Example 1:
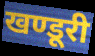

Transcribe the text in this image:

खण्डूरी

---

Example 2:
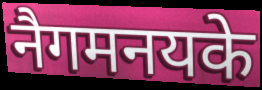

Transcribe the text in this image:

नैगमनयके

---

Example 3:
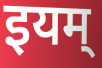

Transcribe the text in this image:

इयम्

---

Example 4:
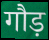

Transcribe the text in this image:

गौड़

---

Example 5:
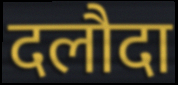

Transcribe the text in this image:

दलौदा